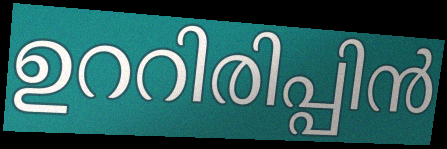
ഉററിരിപ്പിൻ